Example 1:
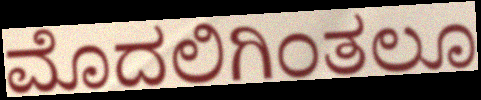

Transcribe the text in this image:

ಮೊದಲಿಗಿಂತಲೂ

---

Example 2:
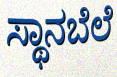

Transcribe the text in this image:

ಸ್ಥಾನಬೆಲೆ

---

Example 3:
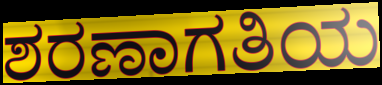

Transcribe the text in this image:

ಶರಣಾಗತಿಯ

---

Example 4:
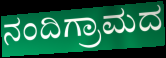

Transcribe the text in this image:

ನಂದಿಗ್ರಾಮದ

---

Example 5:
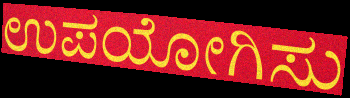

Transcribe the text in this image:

ಉಪಯೋಗಿಸು